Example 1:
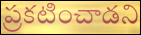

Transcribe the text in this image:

ప్రకటించాడని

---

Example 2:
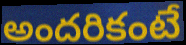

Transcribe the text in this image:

అందరికంటే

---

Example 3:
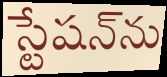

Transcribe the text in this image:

స్టేషన్‌ను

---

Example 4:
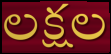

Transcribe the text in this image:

లక్షల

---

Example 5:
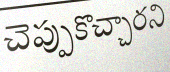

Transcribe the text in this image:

చెప్పుకొచ్చారని